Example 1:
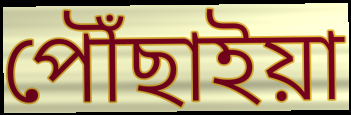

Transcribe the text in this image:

পৌঁছাইয়া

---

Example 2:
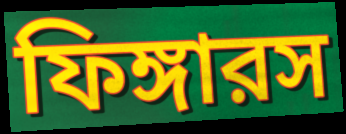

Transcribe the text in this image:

ফিঙ্গারস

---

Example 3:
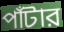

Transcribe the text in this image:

পাঁটার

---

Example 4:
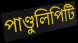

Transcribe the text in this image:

পাণ্ডুলিপিটি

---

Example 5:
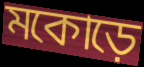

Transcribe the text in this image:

মকোড়ে